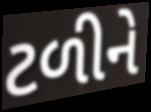
ટળીને